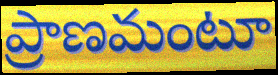
ప్రాణమంటూ